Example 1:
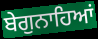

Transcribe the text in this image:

ਬੇਗੁਨਾਹਿਆਂ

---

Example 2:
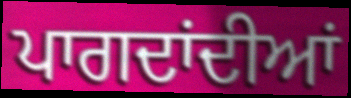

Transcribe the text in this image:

ਪਾਗਦਾਂਦੀਆਂ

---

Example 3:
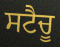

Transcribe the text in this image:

ਸਟੈਚੂ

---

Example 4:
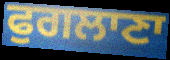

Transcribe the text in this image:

ਫੁਗਲਾਣਾ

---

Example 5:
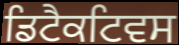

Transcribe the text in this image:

ਡਿਟੈਕਟਿਵਸ